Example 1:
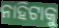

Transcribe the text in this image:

ନାହିଟାକୁ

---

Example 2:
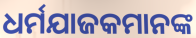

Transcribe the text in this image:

ଧର୍ମଯାଜକମାନଙ୍କ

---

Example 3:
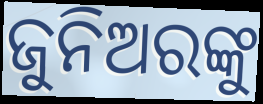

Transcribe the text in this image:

ଜୁନିଅରଙ୍କୁ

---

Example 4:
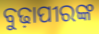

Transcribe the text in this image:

ବୁଢ଼ାପୀରଙ୍କ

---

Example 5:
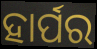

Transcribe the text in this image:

ହାର୍ପର